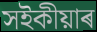
সইকীয়াৰ